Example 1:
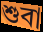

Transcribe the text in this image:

শুবা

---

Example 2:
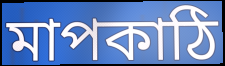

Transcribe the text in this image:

মাপকাঠি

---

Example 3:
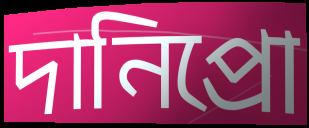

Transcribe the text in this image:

দানিপ্রো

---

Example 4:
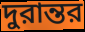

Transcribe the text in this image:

দুরান্তর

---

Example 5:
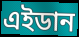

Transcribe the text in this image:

এইডান